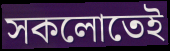
সকলোতেই